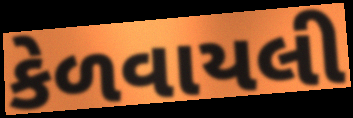
કેળવાયલી